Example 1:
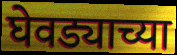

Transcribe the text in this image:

घेवड्याच्या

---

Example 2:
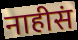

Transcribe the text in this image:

नाहीसं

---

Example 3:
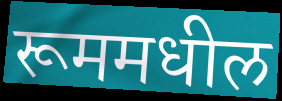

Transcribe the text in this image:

रूममधील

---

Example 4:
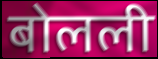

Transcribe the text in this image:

बोलली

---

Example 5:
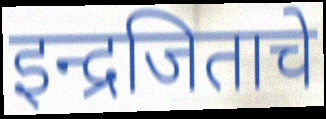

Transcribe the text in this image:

इन्द्रजिताचे